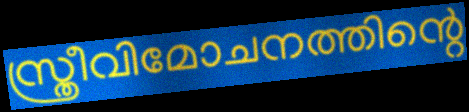
സ്ത്രീവിമോചനത്തിന്റെ